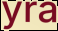
yra